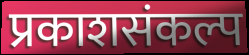
प्रकाशसंकल्प